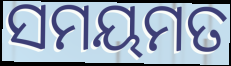
ସମୟମତ